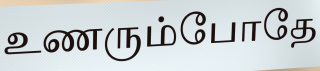
உணரும்போதே